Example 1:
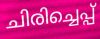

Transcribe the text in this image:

ചിരിച്ചെപ്പ്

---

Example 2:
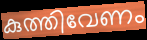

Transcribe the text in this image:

കുത്തിവേണം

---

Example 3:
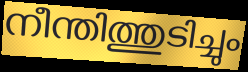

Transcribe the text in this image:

നീന്തിത്തുടിച്ചും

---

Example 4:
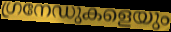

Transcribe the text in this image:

ഗ്രനേഡുകളെയും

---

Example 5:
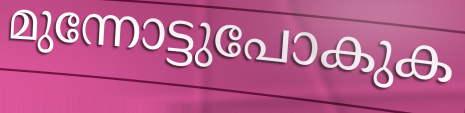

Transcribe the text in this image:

മുന്നോട്ടുപോകുക